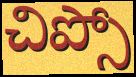
చిప్సో